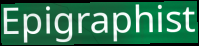
Epigraphist